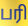
பரி